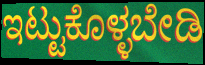
ಇಟ್ಟುಕೊಳ್ಳಬೇಡಿ